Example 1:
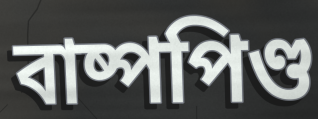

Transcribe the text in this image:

বাষ্পপিণ্ড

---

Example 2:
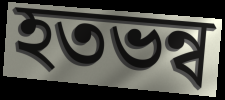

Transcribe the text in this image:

হতভন্ব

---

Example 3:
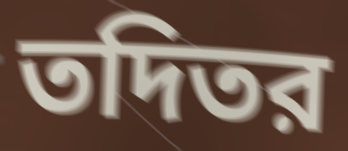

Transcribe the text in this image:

তদিতর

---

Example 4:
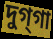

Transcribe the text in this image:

দুগ্‌গা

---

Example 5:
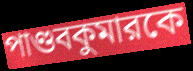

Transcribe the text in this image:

পাণ্ডবকুমারকে